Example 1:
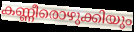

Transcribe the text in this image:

കണ്ണീരൊഴുക്കിയും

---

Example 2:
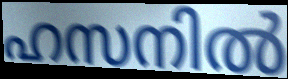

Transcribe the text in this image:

ഹസനിൽ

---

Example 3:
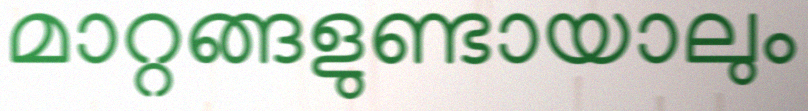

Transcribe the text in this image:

മാറ്റങ്ങളുണ്ടായാലും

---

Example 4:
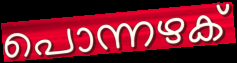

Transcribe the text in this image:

പൊന്നഴക്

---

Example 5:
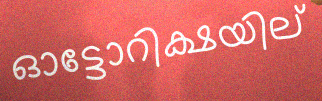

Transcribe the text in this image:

ഓട്ടോറിക്ഷയില്